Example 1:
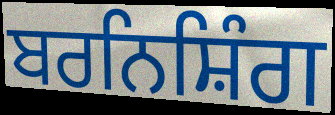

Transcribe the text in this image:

ਬਰਨਿਸ਼ਿੰਗ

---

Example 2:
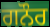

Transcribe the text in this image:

ਗਨੌਰ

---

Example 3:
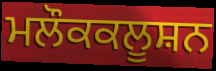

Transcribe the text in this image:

ਮਲੌਕਕਲੂਸ਼ਨ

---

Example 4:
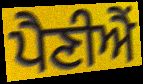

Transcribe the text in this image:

ਪੈਣੀਐਂ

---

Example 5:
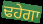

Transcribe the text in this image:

ਢਹੇਗਾ